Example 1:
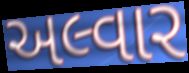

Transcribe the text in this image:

અલ્વાર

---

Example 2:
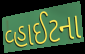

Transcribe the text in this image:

વ્હાઈટના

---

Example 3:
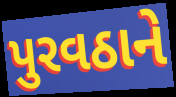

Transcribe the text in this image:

પુરવઠાને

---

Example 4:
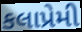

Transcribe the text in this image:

કલાપ્રેમી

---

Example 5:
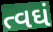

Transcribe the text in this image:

ત્વઘં